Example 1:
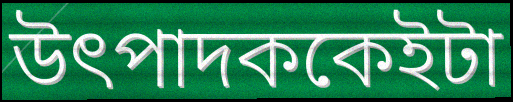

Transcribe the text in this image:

উৎপাদককেইটা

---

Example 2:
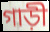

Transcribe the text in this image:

গাড়ী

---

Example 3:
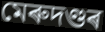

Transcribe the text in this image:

মেৰুদণ্ডৰ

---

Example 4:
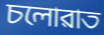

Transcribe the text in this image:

চলোৱাত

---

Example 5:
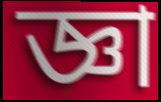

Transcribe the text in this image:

জ্ঞা